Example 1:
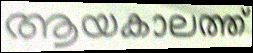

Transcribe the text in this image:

ആയകാലത്ത്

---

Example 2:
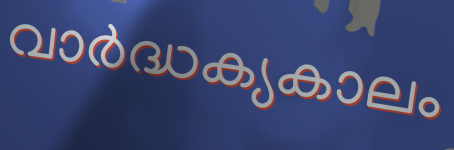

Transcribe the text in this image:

വാർദ്ധക്യകാലം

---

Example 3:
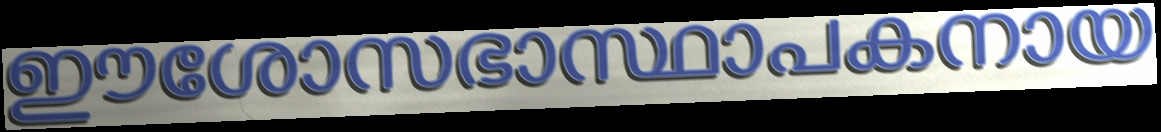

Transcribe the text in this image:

ഈശോസഭാസ്ഥാപകനായ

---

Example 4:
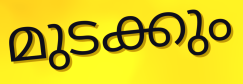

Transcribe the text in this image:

മുടക്കും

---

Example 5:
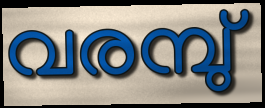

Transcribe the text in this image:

വരമ്പു്